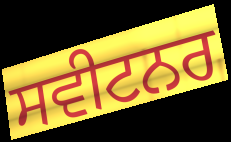
ਸਵੀਟਨਰ